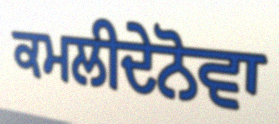
ਕਮਲੀਦੇਨੋਵਾ